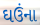
ઘઉંના